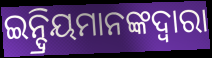
ଇନ୍ଦ୍ରିୟମାନଙ୍କଦ୍ୱାରା